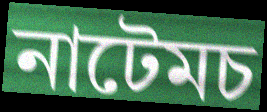
নাটেমচ